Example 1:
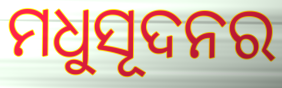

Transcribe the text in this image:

ମଧୁସୂଦନର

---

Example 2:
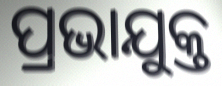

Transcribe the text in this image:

ପ୍ରଭାଯୁକ୍ତ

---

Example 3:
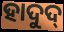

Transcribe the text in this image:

ହାଦୁଦ୍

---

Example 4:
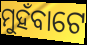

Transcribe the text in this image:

ମୁହଁବାଟେ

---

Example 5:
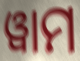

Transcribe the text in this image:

ୱାମ